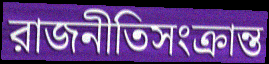
রাজনীতিসংক্রান্ত